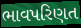
ભાવપરિણત